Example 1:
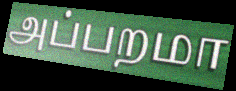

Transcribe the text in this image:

அப்பறமா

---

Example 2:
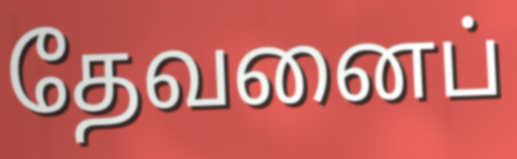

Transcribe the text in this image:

தேவனைப்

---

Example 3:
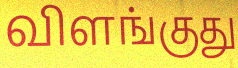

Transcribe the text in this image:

விளங்குது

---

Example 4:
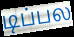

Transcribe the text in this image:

டிப்பல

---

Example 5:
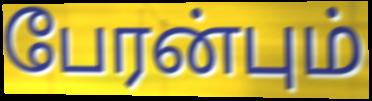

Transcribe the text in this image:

பேரன்பும்